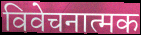
विवेचनात्मक